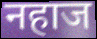
नहाज